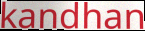
kandhan